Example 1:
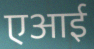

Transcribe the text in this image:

एआई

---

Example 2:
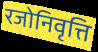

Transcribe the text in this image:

रजोनिवृत्ति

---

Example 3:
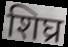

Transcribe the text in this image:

शिघ्र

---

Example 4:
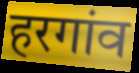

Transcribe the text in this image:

हरगांव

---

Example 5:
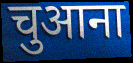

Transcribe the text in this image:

चुआना